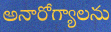
అనారోగ్యాలను